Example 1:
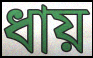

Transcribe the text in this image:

ধায়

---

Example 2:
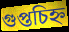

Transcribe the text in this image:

গুপ্তচিহ্ন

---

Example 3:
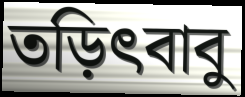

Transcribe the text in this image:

তড়িৎবাবু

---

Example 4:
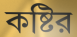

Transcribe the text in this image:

কষ্টির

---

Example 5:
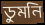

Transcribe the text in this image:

ডুমনি